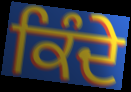
ਕਿੰਦੇ